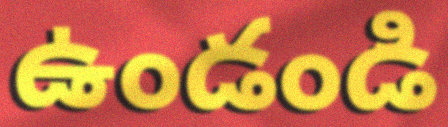
ఉండండి